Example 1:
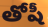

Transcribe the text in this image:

తోషీ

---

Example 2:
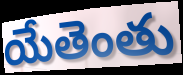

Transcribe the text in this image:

యేతెంతు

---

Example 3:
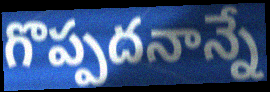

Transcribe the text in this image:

గొప్పదనాన్నే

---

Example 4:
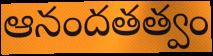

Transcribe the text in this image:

ఆనందతత్వం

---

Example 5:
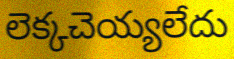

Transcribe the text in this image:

లెక్కచెయ్యలేదు